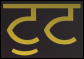
ਟੁਟ